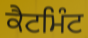
ਕੈਟਮਿੰਟ